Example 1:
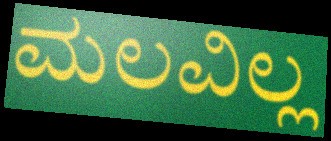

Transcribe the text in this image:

ಮಲವಿಲ್ಲ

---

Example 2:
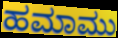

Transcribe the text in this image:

ಹಮಾಮು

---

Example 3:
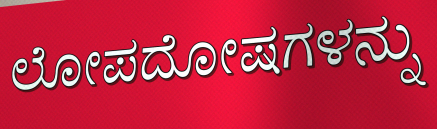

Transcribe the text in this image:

ಲೋಪದೋಷಗಳನ್ನು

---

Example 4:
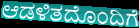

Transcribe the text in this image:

ಆಡಳಿತದೊಂದಿಗೆ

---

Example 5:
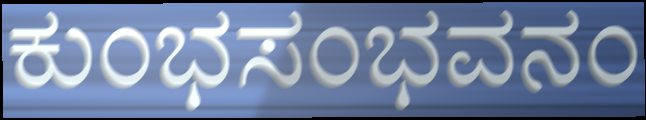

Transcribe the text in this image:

ಕುಂಭಸಂಭವನಂ